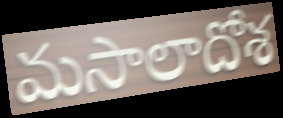
మసాలాదోశ